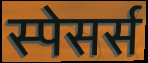
स्पेसर्स